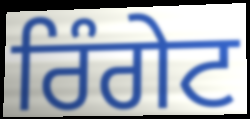
ਰਿੰਗੇਟ